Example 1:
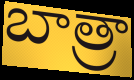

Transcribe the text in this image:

బాత్రా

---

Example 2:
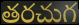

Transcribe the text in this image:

తరచుగ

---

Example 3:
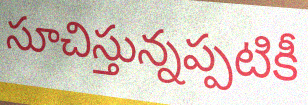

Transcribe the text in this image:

సూచిస్తున్నప్పటికీ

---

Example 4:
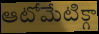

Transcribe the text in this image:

ఆటోమేటిక్గా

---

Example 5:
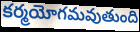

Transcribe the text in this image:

కర్మయోగమవుతుంది